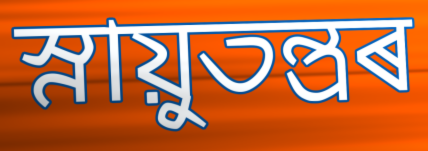
স্নায়ুতন্ত্ৰৰ